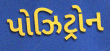
પોઝિટ્રોન